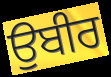
ਉਬੀਰ